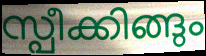
സ്പീക്കിങ്ങും